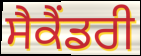
ਸੈਕੈਂਡਰੀ